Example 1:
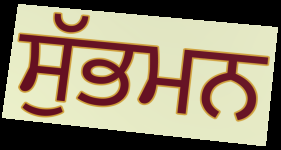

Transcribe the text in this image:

ਸੁੱਭਮਨ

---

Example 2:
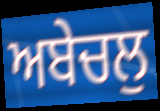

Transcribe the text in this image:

ਅਬੇਚਲੁ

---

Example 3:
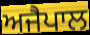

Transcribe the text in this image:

ਅਜੈਪਾਲ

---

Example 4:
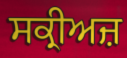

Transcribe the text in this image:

ਸਕ੍ਰੀਅਜ਼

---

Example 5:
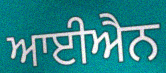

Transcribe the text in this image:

ਆਈਐਨ